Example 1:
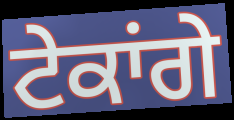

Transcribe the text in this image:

ਟੇਕਾਂਗੇ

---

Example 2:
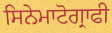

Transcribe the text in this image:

ਸਿਨੇਮਾਟੋਗ੍ਰਾਫੀ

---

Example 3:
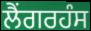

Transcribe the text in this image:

ਲੈਂਗਰਹੰਸ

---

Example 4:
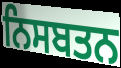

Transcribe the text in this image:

ਨਿਸਬਤਨ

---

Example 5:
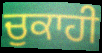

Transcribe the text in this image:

ਚੁਕਾਹੀ